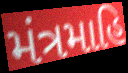
મંત્રમાહિ